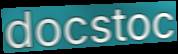
docstoc